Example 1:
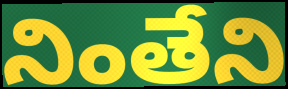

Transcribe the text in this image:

నింతేని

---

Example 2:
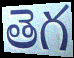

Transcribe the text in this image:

తెగ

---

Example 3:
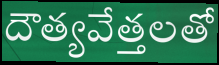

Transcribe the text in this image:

దౌత్యవేత్తలతో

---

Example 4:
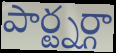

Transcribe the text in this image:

పార్ట్నర్గా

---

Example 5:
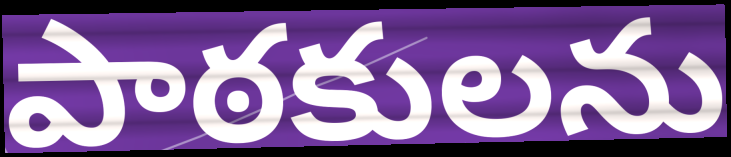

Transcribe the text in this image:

పాఠకులను